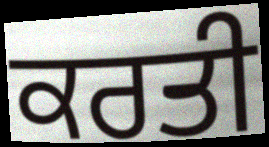
ਕਰਤੀ